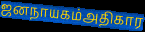
ஜனநாயகம்அதிகார